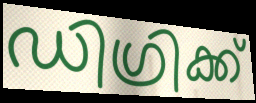
ഡിഗ്രിക്ക്